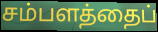
சம்பளத்தைப்